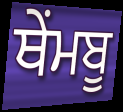
ਥੇਂਮਬੂ